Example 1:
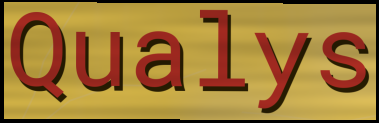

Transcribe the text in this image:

Qualys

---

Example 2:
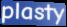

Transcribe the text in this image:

plasty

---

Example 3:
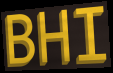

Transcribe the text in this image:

BHI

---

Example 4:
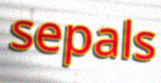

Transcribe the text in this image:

sepals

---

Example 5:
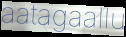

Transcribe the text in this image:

aatagaallu